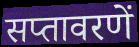
सप्तावरणें